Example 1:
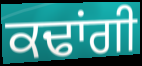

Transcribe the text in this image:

ਕਢਾਂਗੀ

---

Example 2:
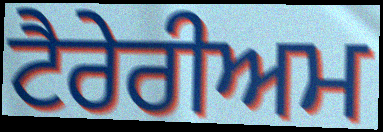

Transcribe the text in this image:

ਟੈਰੇਰੀਅਮ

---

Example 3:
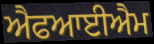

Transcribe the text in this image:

ਐਫਆਈਐਮ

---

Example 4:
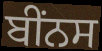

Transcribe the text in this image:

ਬੀਂਨਸ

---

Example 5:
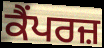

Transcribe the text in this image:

ਕੈਂਪਰਜ਼